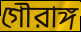
গৌরাঙ্গ